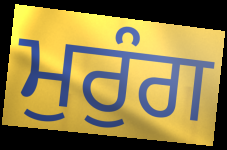
ਮੁਰੁੰਗ